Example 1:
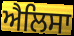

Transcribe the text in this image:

ਐਲਿਸਾ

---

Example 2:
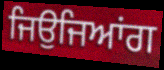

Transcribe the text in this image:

ਜਿਉਜਿਆਂਗ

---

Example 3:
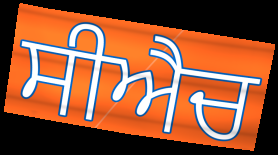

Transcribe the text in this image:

ਸੀਐਚ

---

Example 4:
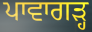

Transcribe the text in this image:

ਪਾਵਾਗੜ੍ਹ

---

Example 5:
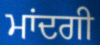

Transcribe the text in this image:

ਮਾਂਦਗੀ